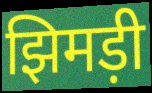
झिमड़ी